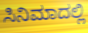
ಸಿನಿಮಾದಲ್ಲಿ